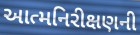
આત્મનિરીક્ષણની